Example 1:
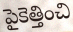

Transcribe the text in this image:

పైకెత్తించి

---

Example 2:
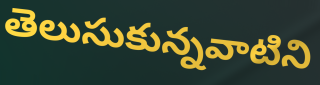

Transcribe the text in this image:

తెలుసుకున్నవాటిని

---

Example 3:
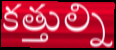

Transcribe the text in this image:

కత్తుల్ని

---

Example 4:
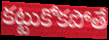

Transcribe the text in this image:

కట్టుకోకపోతే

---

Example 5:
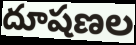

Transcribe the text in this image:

దూషణల